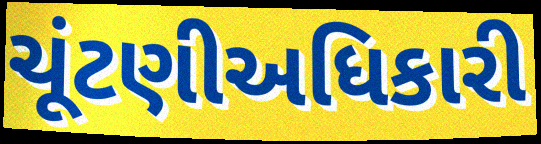
ચૂંટણીઅધિકારી